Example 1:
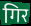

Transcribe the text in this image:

गिर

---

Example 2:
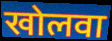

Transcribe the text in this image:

खोलवा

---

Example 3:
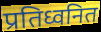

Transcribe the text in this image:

प्रतिध्वनित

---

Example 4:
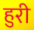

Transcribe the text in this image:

हुरी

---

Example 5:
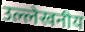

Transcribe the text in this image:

उल्लेखनीय